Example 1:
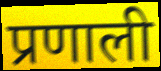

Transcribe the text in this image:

प्रणाली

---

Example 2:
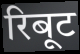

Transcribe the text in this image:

रिबूट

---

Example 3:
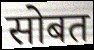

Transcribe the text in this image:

सोबत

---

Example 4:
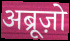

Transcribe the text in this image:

अब्रूज़ो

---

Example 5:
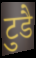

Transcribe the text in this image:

टुडै